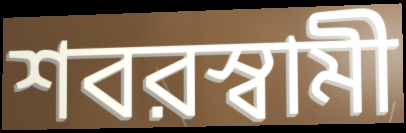
শবরস্বামী